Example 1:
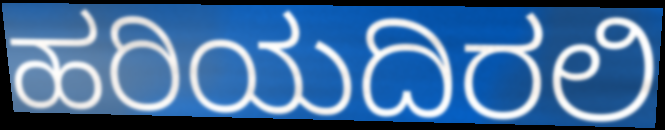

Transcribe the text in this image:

ಹರಿಯದಿರಲಿ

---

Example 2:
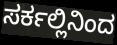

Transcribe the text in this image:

ಸರ್ಕಲ್ಲಿನಿಂದ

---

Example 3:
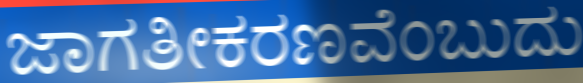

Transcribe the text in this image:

ಜಾಗತೀಕರಣವೆಂಬುದು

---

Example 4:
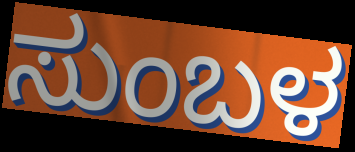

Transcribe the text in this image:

ಸುಂಬಳ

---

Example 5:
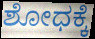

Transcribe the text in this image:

ಶೋಧಕ್ಕೆ